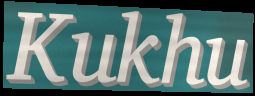
Kukhu